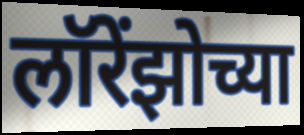
लॉरेंझोच्या